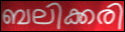
ബലിക്കരി